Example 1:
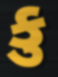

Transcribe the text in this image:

કુ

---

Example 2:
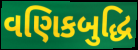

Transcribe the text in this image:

વણિકબુદ્ધિ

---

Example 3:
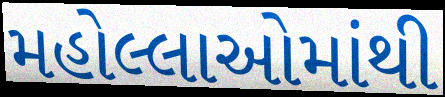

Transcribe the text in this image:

મહોલ્લાઓમાંથી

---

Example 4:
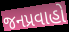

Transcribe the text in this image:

જનપ્રવાહો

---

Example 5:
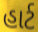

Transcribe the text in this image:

હાર્ટ